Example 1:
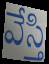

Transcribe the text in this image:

వేస్తి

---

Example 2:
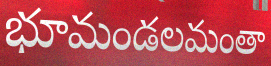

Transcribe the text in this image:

భూమండలమంతా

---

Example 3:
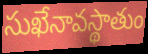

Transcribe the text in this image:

సుఖేనావస్థాతుం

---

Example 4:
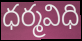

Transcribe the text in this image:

ధర్మవిధి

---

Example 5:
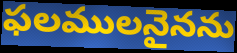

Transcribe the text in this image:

ఫలములనైనను